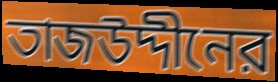
তাজউদ্দীনের